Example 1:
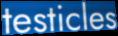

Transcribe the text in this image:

testicles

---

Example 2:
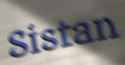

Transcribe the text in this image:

Sistan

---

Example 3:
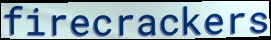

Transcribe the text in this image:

firecrackers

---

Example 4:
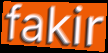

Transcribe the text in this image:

fakir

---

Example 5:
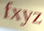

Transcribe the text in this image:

fxyz